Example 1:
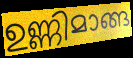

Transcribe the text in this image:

ഉണ്ണിമാങ്ങ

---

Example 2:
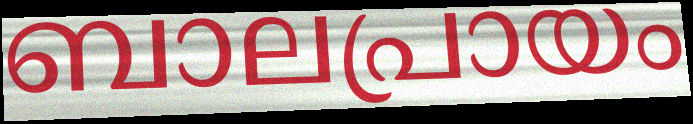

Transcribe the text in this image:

ബാലപ്രായം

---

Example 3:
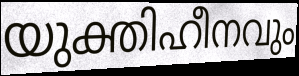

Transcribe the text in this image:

യുക്തിഹീനവും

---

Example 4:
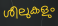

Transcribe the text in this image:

ശീലുകളും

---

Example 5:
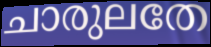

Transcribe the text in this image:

ചാരുലതേ